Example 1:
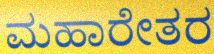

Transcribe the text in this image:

ಮಹಾರೇತರ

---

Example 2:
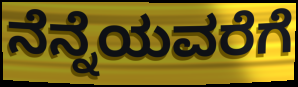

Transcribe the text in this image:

ನೆನ್ನೆಯವರೆಗೆ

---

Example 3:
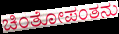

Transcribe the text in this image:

ಚಿಂತೋಪಂತನು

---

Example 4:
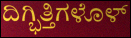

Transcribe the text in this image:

ದಿಗ್ಭಿತ್ತಿಗಳೊಳ್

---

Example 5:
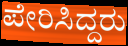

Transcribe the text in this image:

ಪೇರಿಸಿದ್ದರು